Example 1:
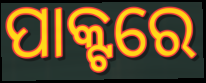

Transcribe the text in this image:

ପାକ୍ଟରେ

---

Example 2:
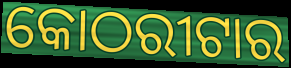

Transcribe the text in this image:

କୋଠରୀଟାର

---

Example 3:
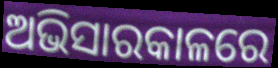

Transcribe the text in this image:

ଅଭିସାରକାଳରେ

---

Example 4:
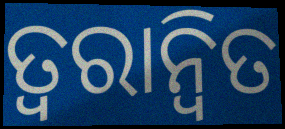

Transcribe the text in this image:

ତ୍ୱରାନ୍ଵିତ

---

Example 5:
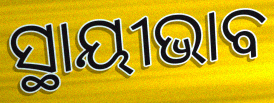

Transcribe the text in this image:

ସ୍ଥାୟୀଭାବ